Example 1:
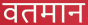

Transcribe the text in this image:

वतमान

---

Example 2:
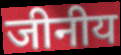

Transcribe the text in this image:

जीनीय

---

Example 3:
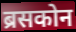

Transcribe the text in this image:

ब्रसकोन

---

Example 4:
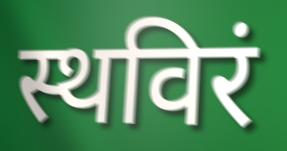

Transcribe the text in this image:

स्थविरं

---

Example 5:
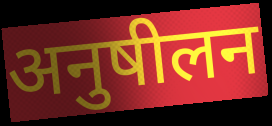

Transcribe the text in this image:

अनुषीलन